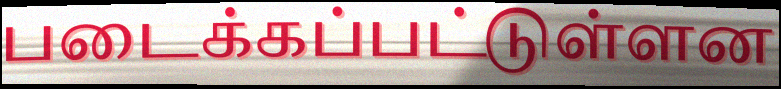
படைக்கப்பட்டுள்ளன